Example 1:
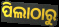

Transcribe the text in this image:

ପିଲାଠାରୁ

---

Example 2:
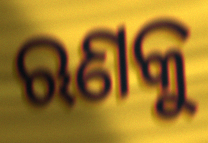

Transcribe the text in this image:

ଋଣକୁ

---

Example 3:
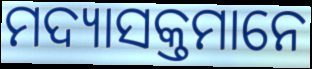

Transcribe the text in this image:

ମଦ୍ୟାସକ୍ତମାନେ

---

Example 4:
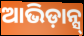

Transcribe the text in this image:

ଆଭିଡ଼ାନ୍ସ୍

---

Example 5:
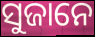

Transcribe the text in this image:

ସୁଜାନେ